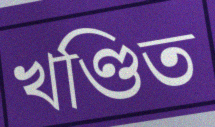
খণ্ডিত